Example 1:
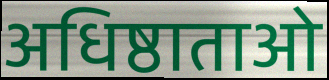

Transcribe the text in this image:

अधिष्ठाताओ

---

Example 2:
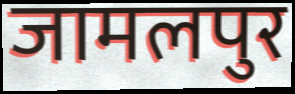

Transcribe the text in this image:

जामलपुर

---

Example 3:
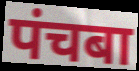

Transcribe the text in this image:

पंचबा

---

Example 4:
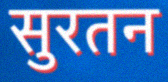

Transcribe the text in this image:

सुरतन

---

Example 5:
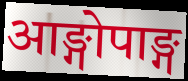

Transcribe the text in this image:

आङ्गोपाङ्ग